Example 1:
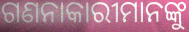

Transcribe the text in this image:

ଗଣନାକାରୀମାନଙ୍କୁ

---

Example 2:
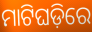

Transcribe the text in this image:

ମାଟିଘଡ଼ିରେ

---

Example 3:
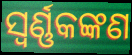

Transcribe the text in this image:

ସ୍ୱର୍ଣ୍ଣକଙ୍କଣ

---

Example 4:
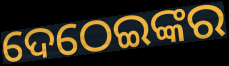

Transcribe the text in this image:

ଦେଠେଇଙ୍କର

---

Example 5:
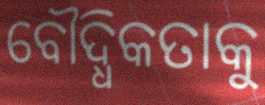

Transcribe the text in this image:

ବୌଦ୍ଧିକତାକୁ